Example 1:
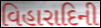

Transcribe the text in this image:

વિહારાદિની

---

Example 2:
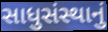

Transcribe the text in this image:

સાધુસંસ્થાનું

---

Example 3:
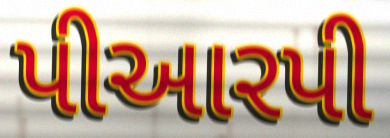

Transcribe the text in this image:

પીઆરપી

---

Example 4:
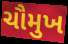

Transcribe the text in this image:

ચૌમુખ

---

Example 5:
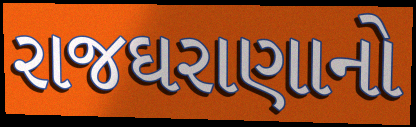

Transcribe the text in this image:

રાજઘરાણાનો